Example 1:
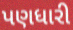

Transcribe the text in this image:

પણધારી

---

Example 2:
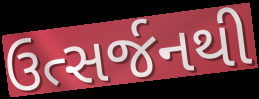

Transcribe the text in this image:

ઉત્સર્જનથી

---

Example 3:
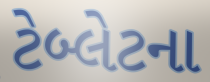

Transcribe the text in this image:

ટેબ્લેટના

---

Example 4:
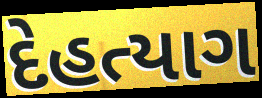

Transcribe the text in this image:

દેહત્યાગ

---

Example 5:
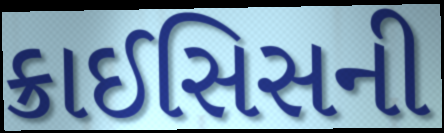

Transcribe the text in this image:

ક્રાઈસિસની